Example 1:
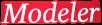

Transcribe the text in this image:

Modeler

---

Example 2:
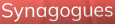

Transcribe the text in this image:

Synagogues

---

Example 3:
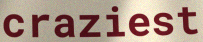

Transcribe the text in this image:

craziest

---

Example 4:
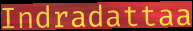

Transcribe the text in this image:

Indradattaa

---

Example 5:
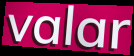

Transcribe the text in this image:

valar